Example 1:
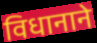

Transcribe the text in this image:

विधानाने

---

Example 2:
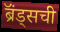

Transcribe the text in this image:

ब्रॅंड्सची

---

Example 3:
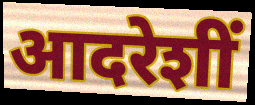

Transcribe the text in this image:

आदरेशीं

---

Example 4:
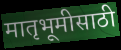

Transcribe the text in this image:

मातृभूमीसाठी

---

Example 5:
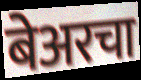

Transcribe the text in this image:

बेअरचा